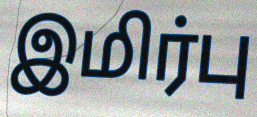
இமிர்பு